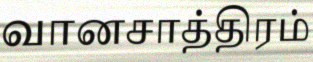
வானசாத்திரம்